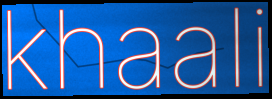
khaali